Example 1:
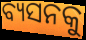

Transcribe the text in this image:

ବ୍ୟସନକୁ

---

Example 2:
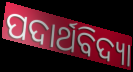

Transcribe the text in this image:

ପଦାର୍ଥବିଦ୍ୟା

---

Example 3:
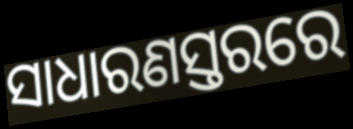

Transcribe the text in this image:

ସାଧାରଣସ୍ତରରେ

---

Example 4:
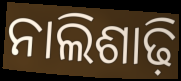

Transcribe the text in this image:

ନାଲିଶାଢ଼ି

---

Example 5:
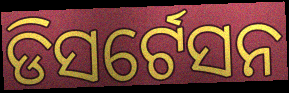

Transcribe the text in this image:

ଡିସର୍ଟେସନ